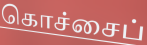
கொச்சைப்